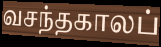
வசந்தகாலப்